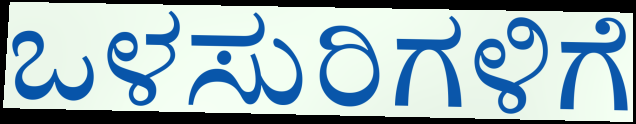
ಒಳಸುರಿಗಳಿಗೆ